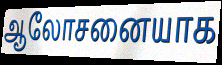
ஆலோசனையாக